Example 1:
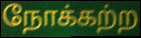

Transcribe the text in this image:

நோக்கற்ற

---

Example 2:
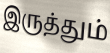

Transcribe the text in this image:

இருத்தும்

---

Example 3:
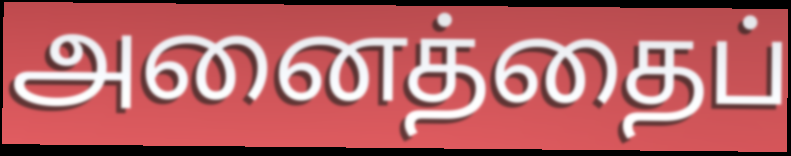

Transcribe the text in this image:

அனைத்தைப்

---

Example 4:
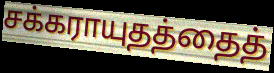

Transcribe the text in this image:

சக்கராயுதத்தைத்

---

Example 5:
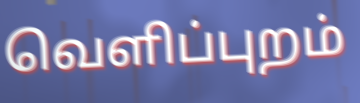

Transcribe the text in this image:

வெளிப்புறம்